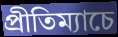
প্রীতিম্যাচে